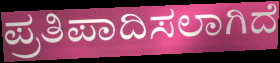
ಪ್ರತಿಪಾದಿಸಲಾಗಿದೆ